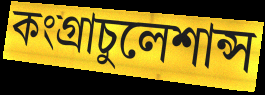
কংগ্রাচুলেশান্স